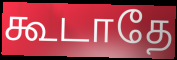
கூடாதே